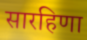
सारहिणा